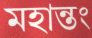
মহান্তং